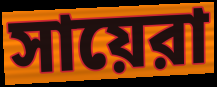
সায়েরা